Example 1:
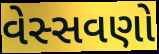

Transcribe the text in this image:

વેસ્સવણો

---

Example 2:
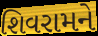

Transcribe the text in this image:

શિવરામને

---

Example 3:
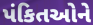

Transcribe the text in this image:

પંકિતઓને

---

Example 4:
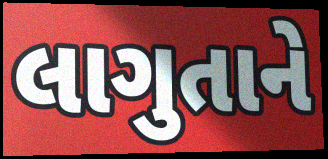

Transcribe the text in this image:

લાગુતાને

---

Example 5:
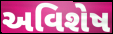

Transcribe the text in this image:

અવિશેષ